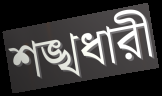
শঙ্খধারী